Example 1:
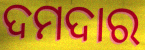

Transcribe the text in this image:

ଦମଦାର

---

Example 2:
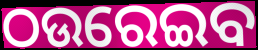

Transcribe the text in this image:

ଠଉରେଇବ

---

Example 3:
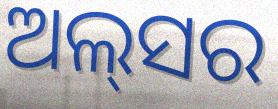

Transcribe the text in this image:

ଅଲ୍‌ସର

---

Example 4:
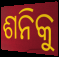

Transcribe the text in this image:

ଶନିକୁ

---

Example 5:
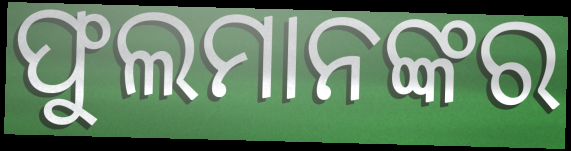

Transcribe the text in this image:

ଫୁଲମାନଙ୍କର